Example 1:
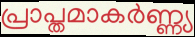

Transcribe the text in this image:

പ്രാപ്തമാകർണ്ണ്യ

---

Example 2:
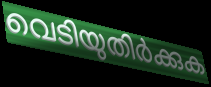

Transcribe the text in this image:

വെടിയുതിർക്കുക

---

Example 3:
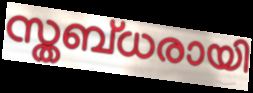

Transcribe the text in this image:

സ്തബ്ധരായി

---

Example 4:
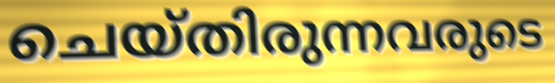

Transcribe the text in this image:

ചെയ്തിരുന്നവരുടെ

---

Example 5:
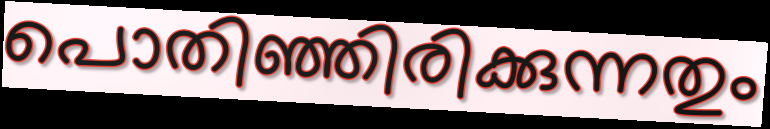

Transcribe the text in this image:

പൊതിഞ്ഞിരിക്കുന്നതും